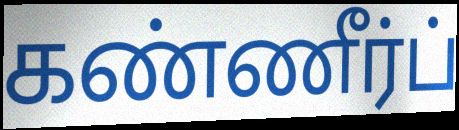
கண்ணீர்ப்